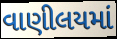
વાણીલયમાં